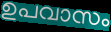
ഉപവാസം